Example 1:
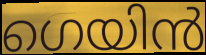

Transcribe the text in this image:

ഗെയിൻ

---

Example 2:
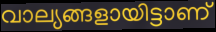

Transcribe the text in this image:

വാല്യങ്ങളായിട്ടാണ്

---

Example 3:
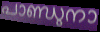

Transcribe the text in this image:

പാണ്ഡുനാ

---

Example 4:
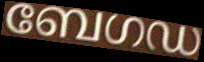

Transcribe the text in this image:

ബേഗഡ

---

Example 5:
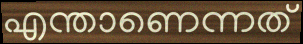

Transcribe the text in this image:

എന്താണെന്നത്